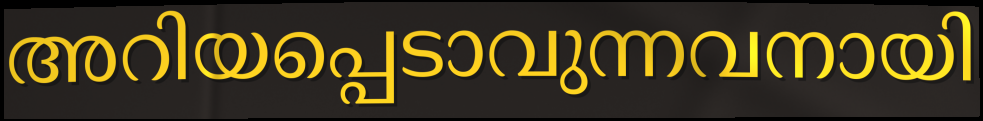
അറിയപ്പെടാവുന്നവനായി